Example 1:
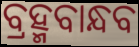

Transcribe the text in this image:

ବ୍ରହ୍ମବାନ୍ଧବ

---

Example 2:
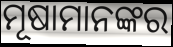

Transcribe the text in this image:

ମୂଷାମାନଙ୍କର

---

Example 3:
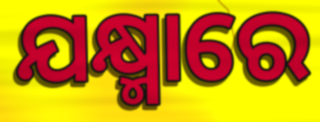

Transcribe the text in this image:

ଯକ୍ଷ୍ମାରେ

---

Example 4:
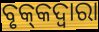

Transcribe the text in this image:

ବୃକ୍‌କଦ୍ଵାରା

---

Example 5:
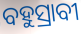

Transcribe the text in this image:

ବହୁସ୍ରାବୀ